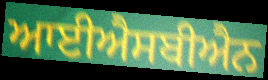
ਆਈਐਸਬੀਐਨ